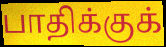
பாதிக்குக்